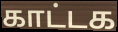
காட்டக